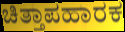
ಚಿತ್ತಾಪಹಾರಕ